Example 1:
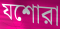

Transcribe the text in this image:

যশোরা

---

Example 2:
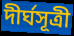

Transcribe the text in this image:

দীর্ঘসূত্রী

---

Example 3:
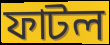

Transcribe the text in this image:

ফাটল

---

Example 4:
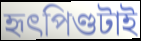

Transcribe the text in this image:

হৃৎপিণ্ডটাই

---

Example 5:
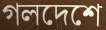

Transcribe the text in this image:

গলদেশে